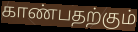
காண்பதற்கும்